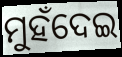
ମୁହଁଦେଇ